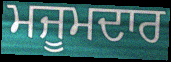
ਮਜੂਮਦਾਰ